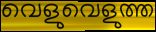
വെളുവെളുത്ത